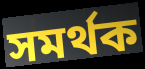
সমৰ্থক